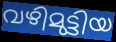
വഴിമുട്ടിയ